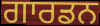
ਗਾਰਡਨ